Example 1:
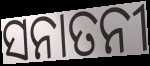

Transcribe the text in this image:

ସନାତନୀ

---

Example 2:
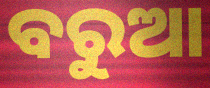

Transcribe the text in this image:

ବରୁଆ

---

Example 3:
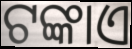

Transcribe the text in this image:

ଟଙ୍କାଏ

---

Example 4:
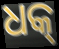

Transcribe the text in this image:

ଧକ୍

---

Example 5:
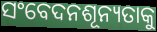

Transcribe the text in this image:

ସଂବେଦନଶୂନ୍ୟତାକୁ